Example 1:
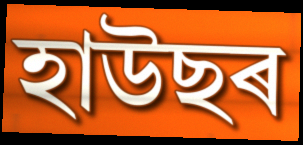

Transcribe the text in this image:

হাউছৰ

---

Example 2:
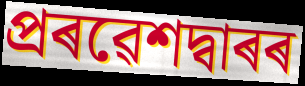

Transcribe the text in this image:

প্ৰৰৱেশদ্বাৰৰ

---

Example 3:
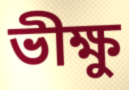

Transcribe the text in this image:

ভীক্ষু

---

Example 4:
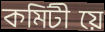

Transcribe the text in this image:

কমিটীয়ে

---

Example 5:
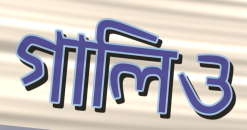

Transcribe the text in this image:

গালিও